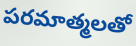
పరమాత్మలతో